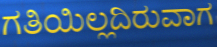
ಗತಿಯಿಲ್ಲದಿರುವಾಗ